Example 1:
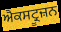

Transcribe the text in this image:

ਐਕਸਟ੍ਰੂਜ਼ਨ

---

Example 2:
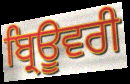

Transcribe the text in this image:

ਬ੍ਰਿਊਵਰੀ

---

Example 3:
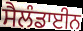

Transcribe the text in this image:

ਸੈਲੰਡਾਈਨ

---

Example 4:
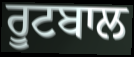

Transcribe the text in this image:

ਰੂਟਬਾਲ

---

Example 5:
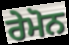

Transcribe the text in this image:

ਰੇਮੋਨ